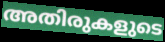
അതിരുകളുടെ